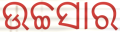
ଉଚ୍ଚସାର